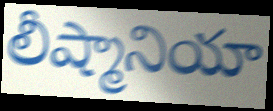
లీష్మానియా